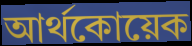
আর্থকোয়েক